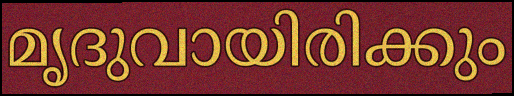
മൃദുവായിരിക്കും